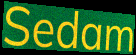
Sedam